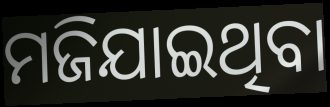
ମଜିଯାଇଥିବା